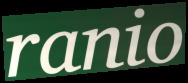
ranio